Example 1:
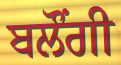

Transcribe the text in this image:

ਬਲੌਂਗੀ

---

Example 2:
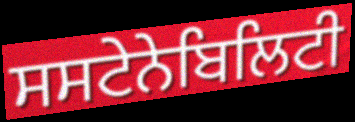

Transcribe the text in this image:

ਸਸਟੇਨੇਬਿਲਿਟੀ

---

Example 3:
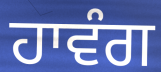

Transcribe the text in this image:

ਹਾਵੰਗ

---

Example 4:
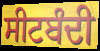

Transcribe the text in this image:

ਸੀਟਬੰਦੀ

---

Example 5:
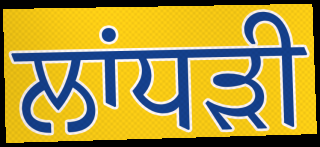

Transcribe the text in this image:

ਲਾਂਧੜੀ